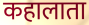
कहालाता